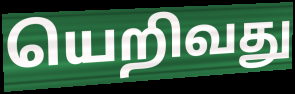
யெறிவது